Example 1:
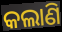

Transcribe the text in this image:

କଲାଣି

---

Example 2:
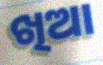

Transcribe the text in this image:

ଖିଆ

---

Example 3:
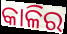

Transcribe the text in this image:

କାଳିର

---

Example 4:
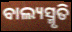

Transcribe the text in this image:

ବାଲ୍ୟସ୍ମୃତି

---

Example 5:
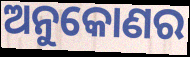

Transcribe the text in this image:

ଅନୁକୋଣର